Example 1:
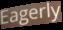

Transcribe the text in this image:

Eagerly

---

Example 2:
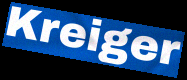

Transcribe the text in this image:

Kreiger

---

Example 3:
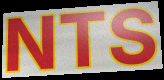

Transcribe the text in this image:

NTS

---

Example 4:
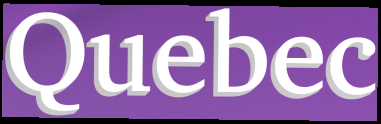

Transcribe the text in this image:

Quebec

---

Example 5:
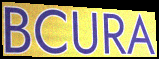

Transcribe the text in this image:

BCURA